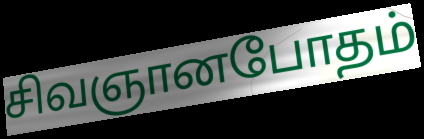
சிவஞானபோதம்